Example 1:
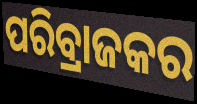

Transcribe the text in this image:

ପରିବ୍ରାଜକର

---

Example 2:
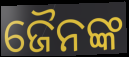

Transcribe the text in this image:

ଜୈନଙ୍କ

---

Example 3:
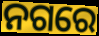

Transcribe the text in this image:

ନଗରେ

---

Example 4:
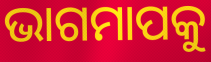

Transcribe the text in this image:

ଭାଗମାପକୁ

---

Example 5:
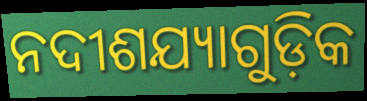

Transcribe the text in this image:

ନଦୀଶଯ୍ୟାଗୁଡ଼ିକ